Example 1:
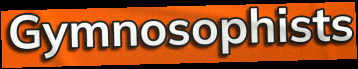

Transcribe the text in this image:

Gymnosophists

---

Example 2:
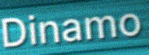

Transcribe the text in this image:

Dinamo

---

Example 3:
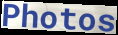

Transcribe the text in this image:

Photos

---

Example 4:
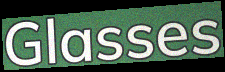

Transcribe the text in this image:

Glasses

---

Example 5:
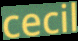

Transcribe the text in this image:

cecil